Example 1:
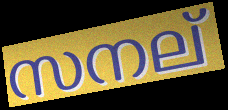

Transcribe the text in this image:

സനല്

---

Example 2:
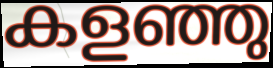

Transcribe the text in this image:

കളഞ്ഞു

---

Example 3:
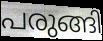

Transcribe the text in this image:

പരുങ്ങി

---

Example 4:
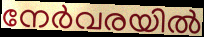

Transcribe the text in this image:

നേർവരയിൽ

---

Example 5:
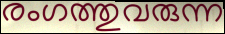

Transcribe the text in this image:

രംഗത്തുവരുന്ന